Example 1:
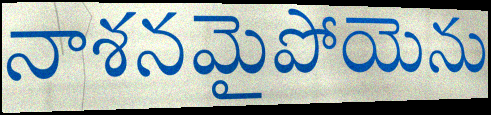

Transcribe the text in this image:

నాశనమైపోయెను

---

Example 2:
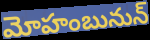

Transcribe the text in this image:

మోహంబునున్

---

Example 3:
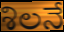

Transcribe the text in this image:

శిలనే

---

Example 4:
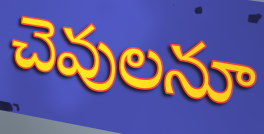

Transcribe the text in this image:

చెవులనూ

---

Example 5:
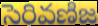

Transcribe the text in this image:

సెరివణిజ